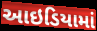
આઇડિયામાં